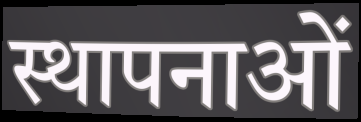
स्थापनाओं